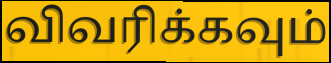
விவரிக்கவும்